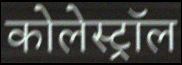
कोलेस्ट्रॉल